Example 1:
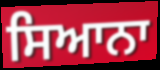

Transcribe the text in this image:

ਸਿਆਨਾ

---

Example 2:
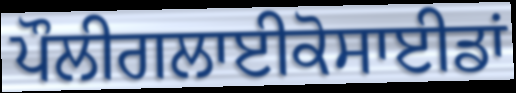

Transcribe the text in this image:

ਪੌਲੀਗਲਾਈਕੋਸਾਈਡਾਂ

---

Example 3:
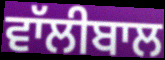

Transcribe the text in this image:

ਵਾੱਲੀਬਾਲ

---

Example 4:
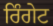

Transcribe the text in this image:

ਰਿੰਗੇਟ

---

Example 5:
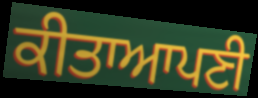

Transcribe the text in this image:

ਕੀਤਾਆਪਣੀ